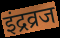
इंद्रव्रज